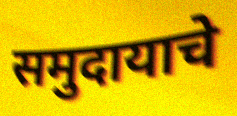
समुदायाचे